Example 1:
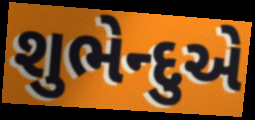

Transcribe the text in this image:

શુભેન્દુએ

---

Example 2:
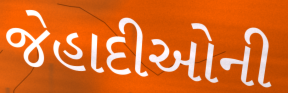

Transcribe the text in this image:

જેહાદીઓની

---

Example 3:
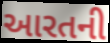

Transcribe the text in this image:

આરતની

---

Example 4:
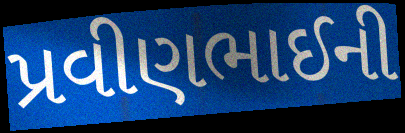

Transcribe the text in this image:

પ્રવીણભાઈની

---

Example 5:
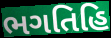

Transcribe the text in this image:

ભગતિહિ